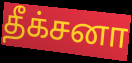
தீக்சனா